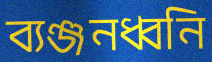
ব্যঞ্জনধ্বনি